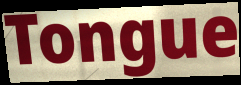
Tongue